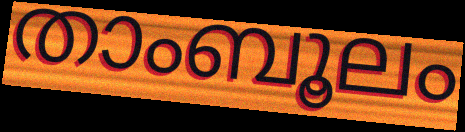
താംബൂലം